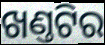
ଖଣ୍ତଟିର